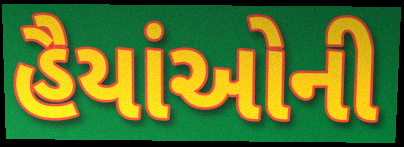
હૈયાંઓની